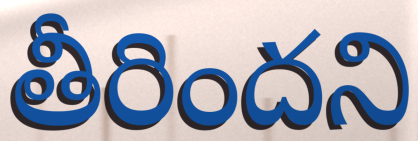
తీరిందని